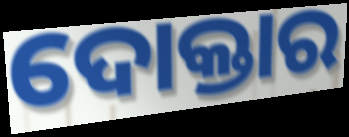
ଦୋକ୍ତାର